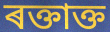
ৰক্তাক্ত